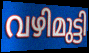
വഴിമുട്ടി